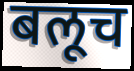
बलूच